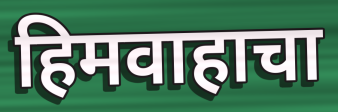
हिमवाहाचा